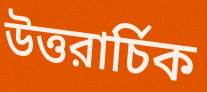
উত্তরার্চিক